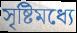
সৃষ্টিমধ্যে